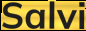
Salvi